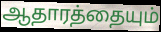
ஆதாரத்தையும்